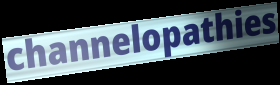
channelopathies